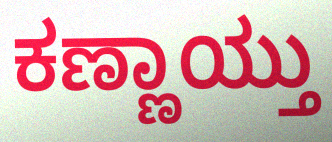
ಕಣ್ಣಾಯ್ತು